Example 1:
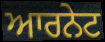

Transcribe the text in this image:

ਆਰਨੇਟ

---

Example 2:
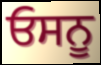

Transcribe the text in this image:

ਓਸਨੂ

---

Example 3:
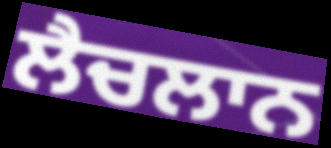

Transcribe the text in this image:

ਲੈਚਲਾਨ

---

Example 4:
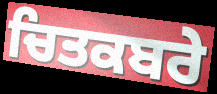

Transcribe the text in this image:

ਚਿਤਕਬਰੇ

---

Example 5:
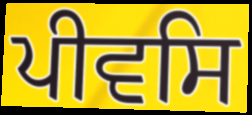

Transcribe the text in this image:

ਪੀਵਸਿ